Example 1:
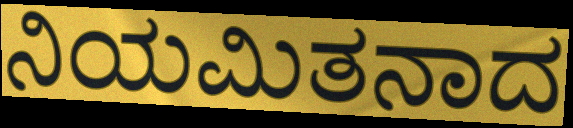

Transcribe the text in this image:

ನಿಯಮಿತನಾದ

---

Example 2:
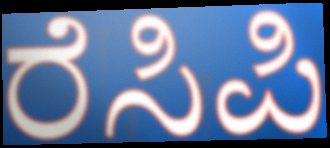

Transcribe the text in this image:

ರೆಸಿಪಿ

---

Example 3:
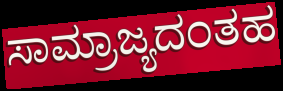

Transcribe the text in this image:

ಸಾಮ್ರಾಜ್ಯದಂತಹ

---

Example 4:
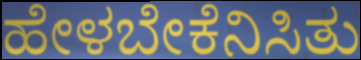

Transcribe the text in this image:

ಹೇಳಬೇಕೆನಿಸಿತು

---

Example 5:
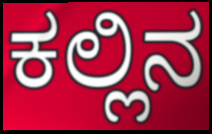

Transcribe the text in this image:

ಕಲ್ಲಿನ